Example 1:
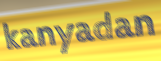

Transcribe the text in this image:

kanyadan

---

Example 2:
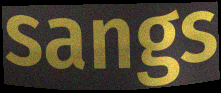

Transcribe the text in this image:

sangs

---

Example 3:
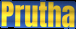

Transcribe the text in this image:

Prutha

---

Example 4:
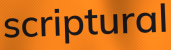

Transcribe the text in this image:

scriptural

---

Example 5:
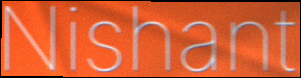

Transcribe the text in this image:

Nishant